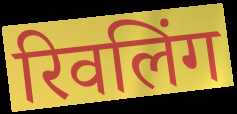
रिवलिंग